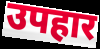
उपहार